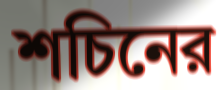
শচিনের